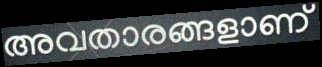
അവതാരങ്ങളാണ്